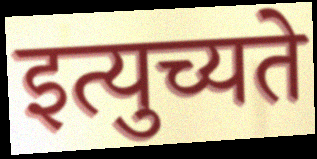
इत्युच्यते